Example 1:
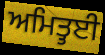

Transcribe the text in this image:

ਅਮਿਤ੍ਤਈ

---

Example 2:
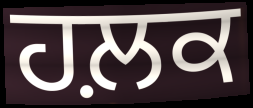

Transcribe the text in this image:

ਹਲ਼ਕ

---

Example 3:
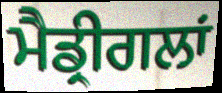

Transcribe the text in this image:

ਮੈਡ੍ਰੀਗਲਾਂ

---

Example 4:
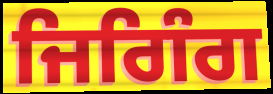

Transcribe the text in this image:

ਜਿਗਿੰਗ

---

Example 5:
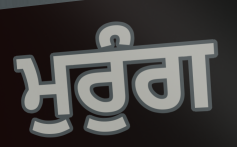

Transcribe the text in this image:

ਮੁਰੁੰਗ